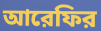
আরেফির